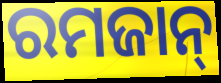
ରମଜାନ୍